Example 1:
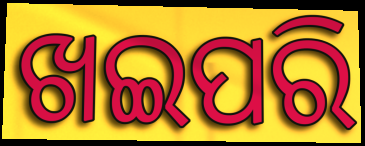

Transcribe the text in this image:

ଖଇପରି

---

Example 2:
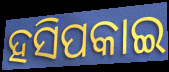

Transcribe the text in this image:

ହସିପକାଇ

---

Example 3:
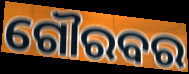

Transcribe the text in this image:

ଗୌରବର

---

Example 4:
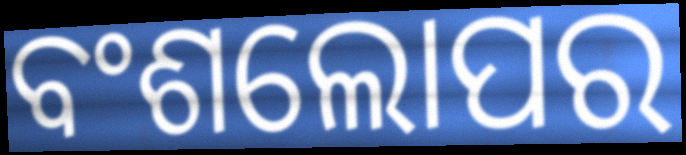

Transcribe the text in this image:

ବଂଶଲୋପର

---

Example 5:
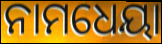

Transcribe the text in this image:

ନାମଧେୟା